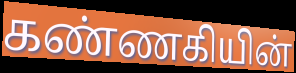
கண்ணகியின்